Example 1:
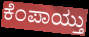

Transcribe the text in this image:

ಕೆಂಪಾಯ್ತು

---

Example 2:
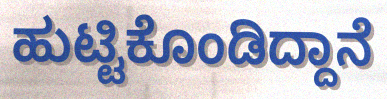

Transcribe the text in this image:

ಹುಟ್ಟಿಕೊಂಡಿದ್ದಾನೆ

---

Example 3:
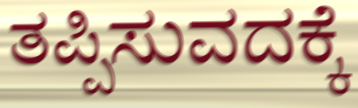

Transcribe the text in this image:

ತಪ್ಪಿಸುವದಕ್ಕೆ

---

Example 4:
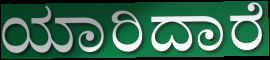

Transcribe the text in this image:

ಯಾರಿದಾರೆ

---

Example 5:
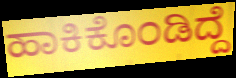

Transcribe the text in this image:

ಹಾಕಿಕೊಂಡಿದ್ದೆ